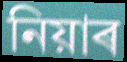
নিয়াৰ